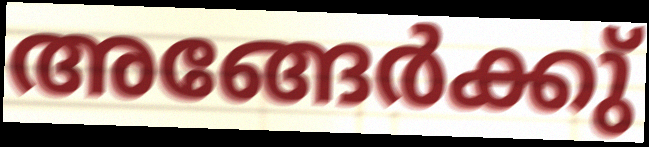
അങ്ങേർക്കു്